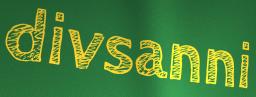
divsanni